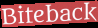
Biteback